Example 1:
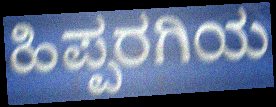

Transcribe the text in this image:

ಹಿಪ್ಪರಗಿಯ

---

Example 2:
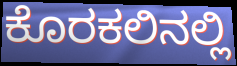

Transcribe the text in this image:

ಕೊರಕಲಿನಲ್ಲಿ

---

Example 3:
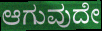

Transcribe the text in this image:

ಆಗುವುದೇ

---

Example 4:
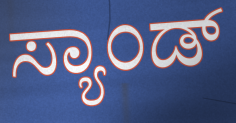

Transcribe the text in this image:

ಸ್ಯಾಂಡ್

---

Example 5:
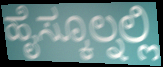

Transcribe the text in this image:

ಹೈಸ್ಕೂಲ್ನಲ್ಲಿ